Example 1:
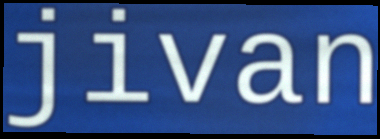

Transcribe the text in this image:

jivan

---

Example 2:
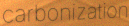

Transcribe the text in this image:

carbonization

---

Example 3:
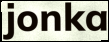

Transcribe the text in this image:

jonka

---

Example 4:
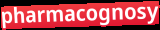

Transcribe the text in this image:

pharmacognosy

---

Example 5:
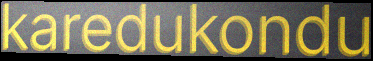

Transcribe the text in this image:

karedukondu